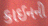
કાઈનની